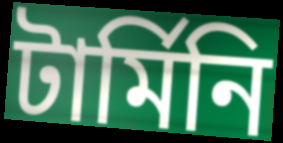
টার্মিনি